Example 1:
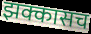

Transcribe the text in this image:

झक्कासच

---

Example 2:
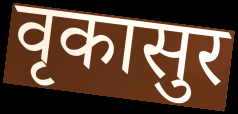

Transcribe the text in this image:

वृकासुर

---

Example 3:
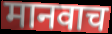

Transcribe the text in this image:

मानवाच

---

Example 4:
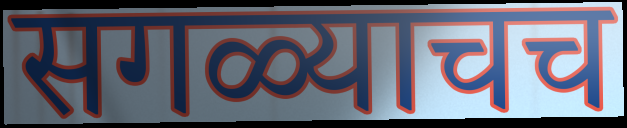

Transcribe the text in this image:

सगळ्याचच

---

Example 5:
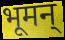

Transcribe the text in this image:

भूमन्